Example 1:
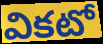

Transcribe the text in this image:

వికటో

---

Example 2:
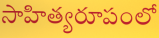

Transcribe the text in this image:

సాహిత్యరూపంలో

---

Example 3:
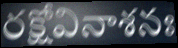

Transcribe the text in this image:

రక్షోవినాశనః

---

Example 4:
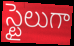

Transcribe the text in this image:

స్టైలుగా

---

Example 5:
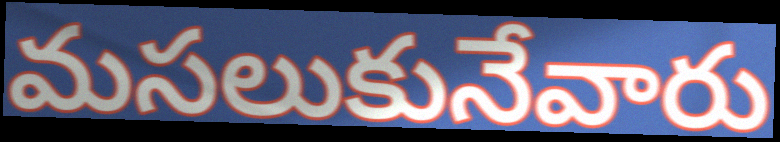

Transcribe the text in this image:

మసలుకునేవారు